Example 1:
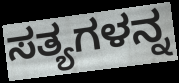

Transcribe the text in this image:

ಸತ್ಯಗಳನ್ನ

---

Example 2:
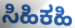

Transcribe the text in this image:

ಸಿಹಿಕಹಿ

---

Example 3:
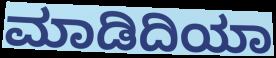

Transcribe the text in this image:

ಮಾಡಿದಿಯಾ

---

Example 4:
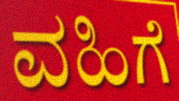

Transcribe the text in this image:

ವಹಿಗೆ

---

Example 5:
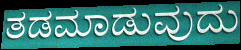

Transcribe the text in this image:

ತಡಮಾಡುವುದು